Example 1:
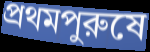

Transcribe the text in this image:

প্রথমপুরুষে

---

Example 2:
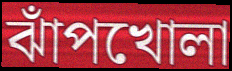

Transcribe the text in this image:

ঝাঁপখোলা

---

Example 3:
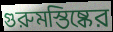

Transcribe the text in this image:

গুরুমস্তিষ্কের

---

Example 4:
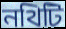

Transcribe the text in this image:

নথিটি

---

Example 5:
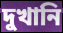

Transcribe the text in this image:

দুখানি